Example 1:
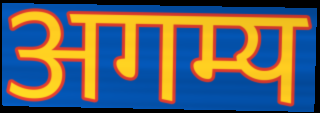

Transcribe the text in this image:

अगम्य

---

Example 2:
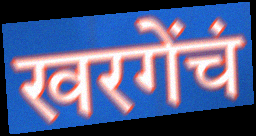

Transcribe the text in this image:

खरगेंचं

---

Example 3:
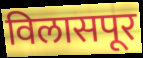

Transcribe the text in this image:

विलासपूर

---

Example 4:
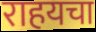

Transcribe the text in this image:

राहयचा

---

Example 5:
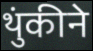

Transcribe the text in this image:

थुंकीने